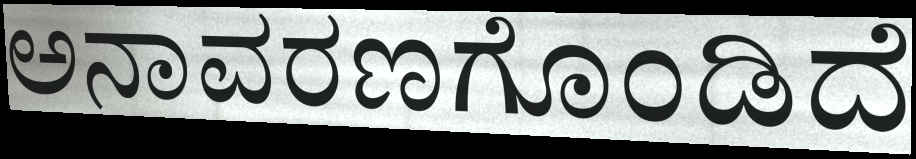
ಅನಾವರಣಗೊಂಡಿದೆ